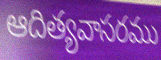
ఆదిత్యవాసరము